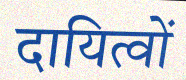
दायित्वों